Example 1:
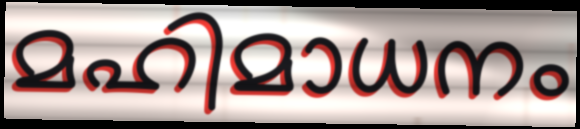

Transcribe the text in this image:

മഹിമാധനം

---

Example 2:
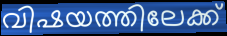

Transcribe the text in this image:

വിഷയത്തിലേക്ക്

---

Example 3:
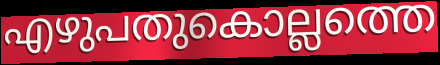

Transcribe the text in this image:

എഴുപതുകൊല്ലത്തെ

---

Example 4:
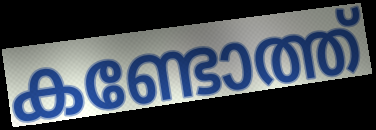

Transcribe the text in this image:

കണ്ടോത്ത്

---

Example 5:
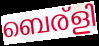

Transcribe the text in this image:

ബെര്ളി